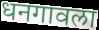
धनगावला